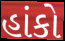
હાંકો